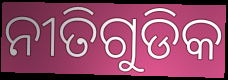
ନୀତିଗୁଡିକ